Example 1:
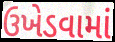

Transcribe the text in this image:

ઉખેડવામાં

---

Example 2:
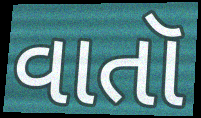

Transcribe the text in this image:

વાતૉ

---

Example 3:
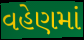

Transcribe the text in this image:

વહેણમાં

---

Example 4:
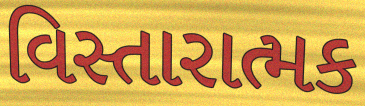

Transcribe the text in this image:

વિસ્તારાત્મક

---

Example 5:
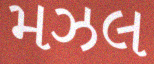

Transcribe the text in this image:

મઝલ